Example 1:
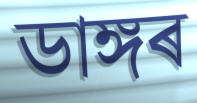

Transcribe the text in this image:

ডাঙ্গৰ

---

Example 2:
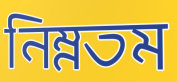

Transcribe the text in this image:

নিম্নতম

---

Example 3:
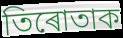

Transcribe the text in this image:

তিৰোতাক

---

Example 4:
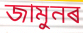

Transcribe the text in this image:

জামুনৰ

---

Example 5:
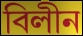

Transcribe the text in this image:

বিলীন